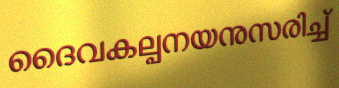
ദൈവകല്പനയനുസരിച്ച്